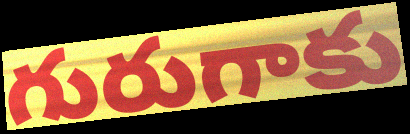
గురుగాకు